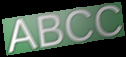
ABCC